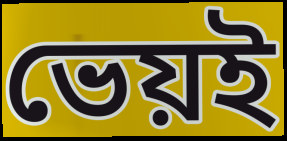
ভেয়ই